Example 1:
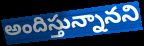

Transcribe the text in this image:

అందిస్తున్నానని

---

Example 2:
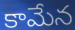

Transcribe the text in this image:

కామేన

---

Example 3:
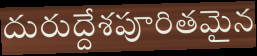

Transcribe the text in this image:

దురుద్దేశపూరితమైన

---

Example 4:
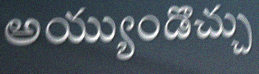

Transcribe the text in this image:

అయ్యుండొచ్చు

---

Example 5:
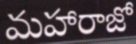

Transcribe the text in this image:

మహారాజో